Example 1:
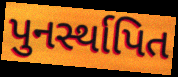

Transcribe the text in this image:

પુનર્સ્થાપિત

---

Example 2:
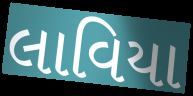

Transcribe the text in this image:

લાવિયા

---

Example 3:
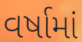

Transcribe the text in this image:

વર્ષામાં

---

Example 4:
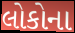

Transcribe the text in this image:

લોકોના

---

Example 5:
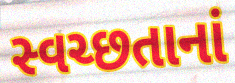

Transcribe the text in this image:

સ્વચ્છતાનાં